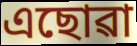
এছোৱা